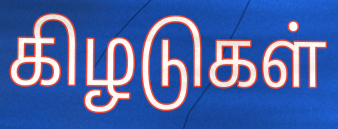
கிழடுகள்